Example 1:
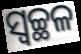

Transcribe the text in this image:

ସ୍ବଚ୍ଛଳ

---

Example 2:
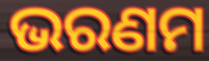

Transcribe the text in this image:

ଭରଣମ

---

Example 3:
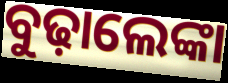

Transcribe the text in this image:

ବୁଢ଼ାଲେଙ୍କା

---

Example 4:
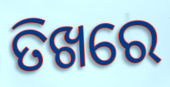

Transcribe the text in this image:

ତିଖରେ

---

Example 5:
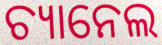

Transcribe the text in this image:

ଚ୍ୟାନେଲ